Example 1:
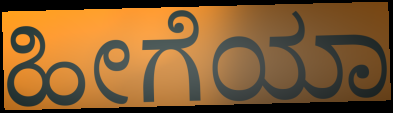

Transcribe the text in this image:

ಹೀಗೆಯಾ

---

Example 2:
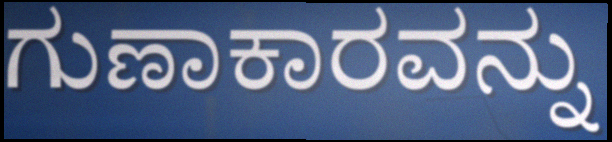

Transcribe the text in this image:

ಗುಣಾಕಾರವನ್ನು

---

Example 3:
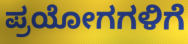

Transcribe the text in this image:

ಪ್ರಯೋಗಗಳಿಗೆ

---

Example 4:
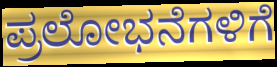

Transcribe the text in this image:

ಪ್ರಲೋಭನೆಗಳಿಗೆ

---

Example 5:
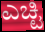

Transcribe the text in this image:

ಎಚ್ಟಿ